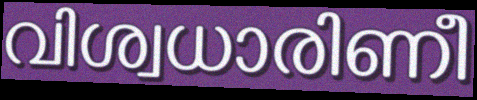
വിശ്വധാരിണീ